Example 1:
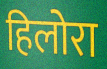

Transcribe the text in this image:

हिलोरा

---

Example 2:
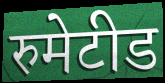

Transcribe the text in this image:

रुमेटीड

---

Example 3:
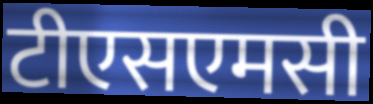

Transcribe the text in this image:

टीएसएमसी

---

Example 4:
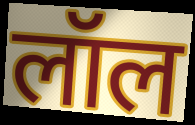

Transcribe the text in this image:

लॉल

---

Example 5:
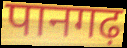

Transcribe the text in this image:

पानगढ़